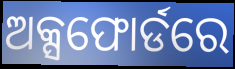
ଅକ୍ସଫୋର୍ଡରେ